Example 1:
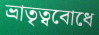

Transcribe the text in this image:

ভ্রাতৃত্ববোধে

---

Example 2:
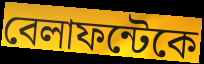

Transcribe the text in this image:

বেলাফন্টেকে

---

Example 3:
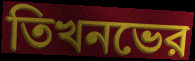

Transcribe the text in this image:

তিখনভের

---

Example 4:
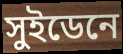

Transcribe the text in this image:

সুইডেনে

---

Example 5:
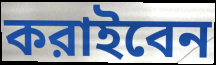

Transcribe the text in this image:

করাইবেন